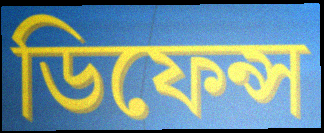
ডিফেন্স